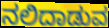
ನಲಿದಾಡುವ